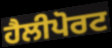
ਹੈਲੀਪੋਰਟ